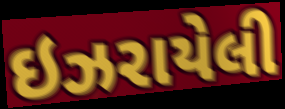
ઇઝરાયેલી